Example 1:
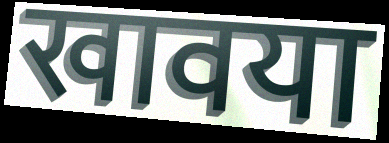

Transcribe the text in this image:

खावया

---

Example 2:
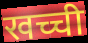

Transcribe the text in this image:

खच्ची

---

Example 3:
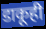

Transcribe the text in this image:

डाकूही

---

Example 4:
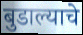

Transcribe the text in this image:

बुडाल्याचे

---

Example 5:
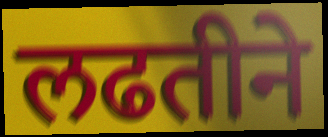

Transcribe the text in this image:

लढतीने